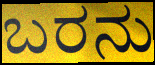
ಬರನು